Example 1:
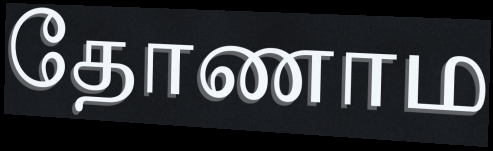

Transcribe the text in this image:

தோணாம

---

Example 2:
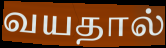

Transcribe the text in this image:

வயதால்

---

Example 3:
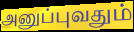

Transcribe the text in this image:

அனுப்புவதும்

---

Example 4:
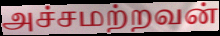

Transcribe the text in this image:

அச்சமற்றவன்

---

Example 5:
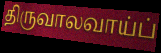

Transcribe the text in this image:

திருவாலவாய்ப்